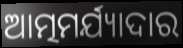
ଆତ୍ମମର୍ଯ୍ୟାଦାର